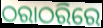
ଠରାଠରିରେ